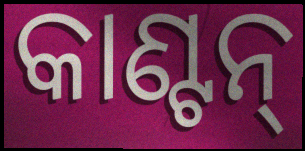
କାଣ୍ଟନ୍